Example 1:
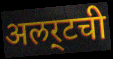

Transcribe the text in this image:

अलर्टची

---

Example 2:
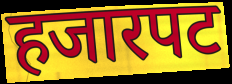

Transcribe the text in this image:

हजारपट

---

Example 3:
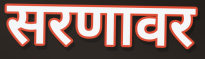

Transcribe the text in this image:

सरणावर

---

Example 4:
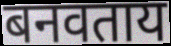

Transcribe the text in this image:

बनवताय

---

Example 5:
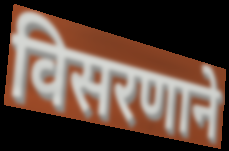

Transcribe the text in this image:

विसरणाने